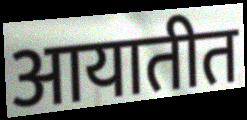
आयातीत